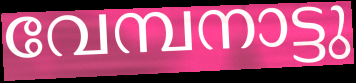
വേമ്പനാട്ടു